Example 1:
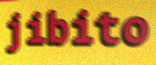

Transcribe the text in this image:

jibito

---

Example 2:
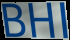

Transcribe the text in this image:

BHI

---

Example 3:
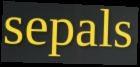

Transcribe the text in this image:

sepals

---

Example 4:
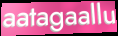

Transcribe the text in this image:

aatagaallu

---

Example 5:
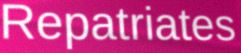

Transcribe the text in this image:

Repatriates